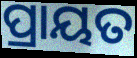
ପ୍ରାୟତ